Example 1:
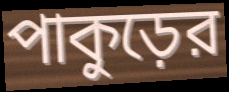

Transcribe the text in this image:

পাকুড়ের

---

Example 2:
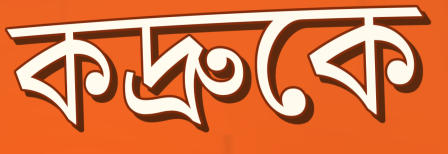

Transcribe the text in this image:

কদ্রুকে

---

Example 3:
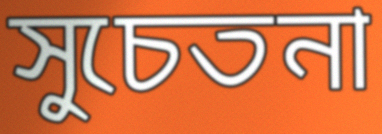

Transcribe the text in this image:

সুচেতনা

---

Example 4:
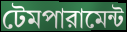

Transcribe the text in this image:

টেমপারামেন্ট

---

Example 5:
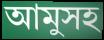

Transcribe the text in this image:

আমুসহ